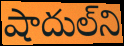
షాదుల్‌ని